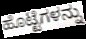
ಹೊಟ್ಟೆಗಳನ್ನು